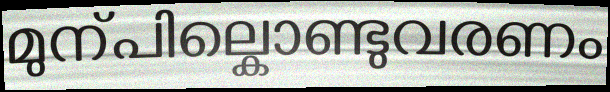
മുന്പില്കൊണ്ടുവരണം